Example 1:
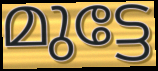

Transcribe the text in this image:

മുട്ടേ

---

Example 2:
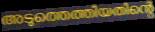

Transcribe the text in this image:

അടുത്തെത്തിയതിന്റെ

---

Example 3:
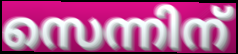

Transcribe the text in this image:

സെന്നിന്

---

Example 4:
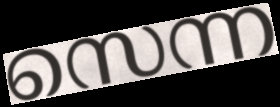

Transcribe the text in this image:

സെന്ന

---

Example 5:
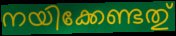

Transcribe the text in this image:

നയിക്കേണ്ടതു്